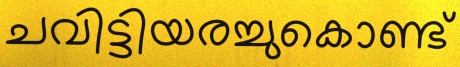
ചവിട്ടിയരച്ചുകൊണ്ട്